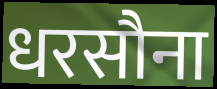
धरसौना